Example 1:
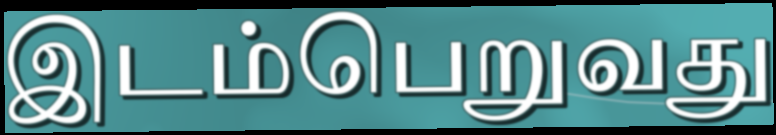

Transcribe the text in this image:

இடம்பெறுவது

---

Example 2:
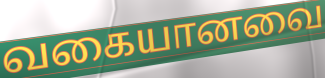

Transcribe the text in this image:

வகையானவை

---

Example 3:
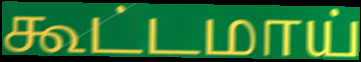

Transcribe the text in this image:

கூட்டமாய்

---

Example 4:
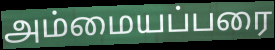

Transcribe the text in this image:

அம்மையப்பரை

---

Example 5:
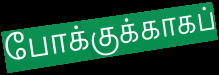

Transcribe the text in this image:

போக்குக்காகப்